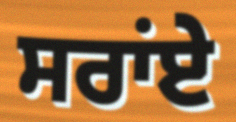
ਸਰਾਂਏ